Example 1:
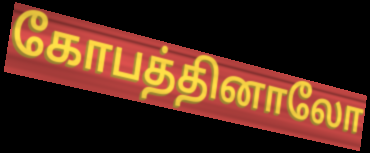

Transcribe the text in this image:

கோபத்தினாலோ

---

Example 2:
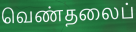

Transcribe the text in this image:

வெண்தலைப்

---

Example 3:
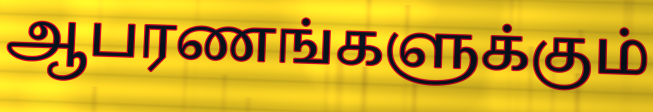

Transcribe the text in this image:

ஆபரணங்களுக்கும்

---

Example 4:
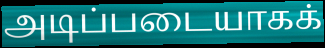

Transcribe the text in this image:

அடிப்படையாகக்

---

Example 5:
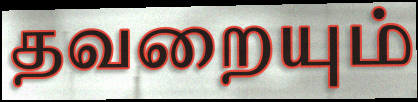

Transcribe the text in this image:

தவறையும்